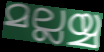
മല്ലയ്യ